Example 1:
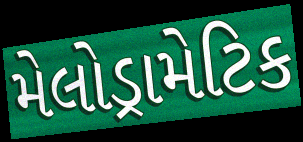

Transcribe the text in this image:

મેલોડ્રામેટિક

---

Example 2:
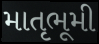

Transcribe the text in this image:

માતૃભૂમી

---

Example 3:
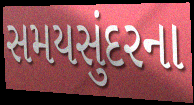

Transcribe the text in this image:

સમયસુંદરના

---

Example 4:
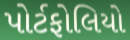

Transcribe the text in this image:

પોર્ટફોલિયો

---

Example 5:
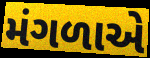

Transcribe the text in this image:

મંગળાએ